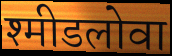
श्मीडलोवा